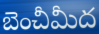
బెంచీమీద